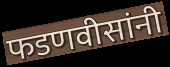
फडणवीसांनी